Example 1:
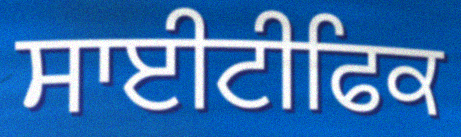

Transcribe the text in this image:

ਸਾਈਟੀਫਿਕ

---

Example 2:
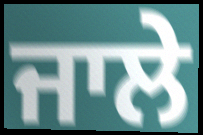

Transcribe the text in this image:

ਜਾਲੇ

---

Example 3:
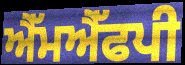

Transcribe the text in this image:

ਐੱਮਐੱਫਪੀ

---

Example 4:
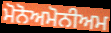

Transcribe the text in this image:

ਮੋਨੋਅਮੋਨੀਅਮ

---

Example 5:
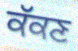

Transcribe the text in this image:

ਕੱਕਣ